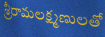
శ్రీరామలక్ష్మణులతో